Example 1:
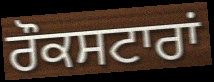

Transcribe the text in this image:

ਰੌਕਸਟਾਰਾਂ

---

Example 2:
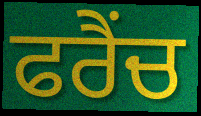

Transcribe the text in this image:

ਫਰੈਂਚ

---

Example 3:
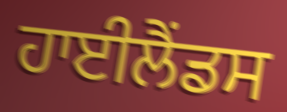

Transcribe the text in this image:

ਹਾਈਲੈਂਡਸ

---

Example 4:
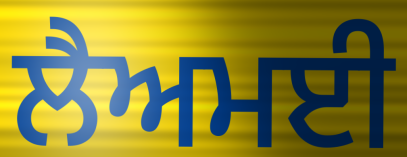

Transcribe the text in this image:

ਲੈਅਮਈ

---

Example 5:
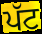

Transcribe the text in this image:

ਪੱਟ